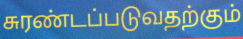
சுரண்டப்படுவதற்கும்